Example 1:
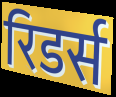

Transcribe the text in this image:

रिडर्स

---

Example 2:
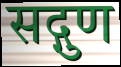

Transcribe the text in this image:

सद्गुण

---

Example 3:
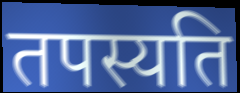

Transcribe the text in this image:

तपस्यति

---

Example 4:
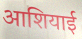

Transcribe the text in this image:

आशियाई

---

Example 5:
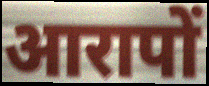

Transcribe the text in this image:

आरापों